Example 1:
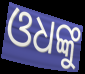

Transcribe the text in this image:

ଓଧଙ୍କୁ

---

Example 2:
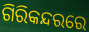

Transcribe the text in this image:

ଗିରିକନ୍ଦରରେ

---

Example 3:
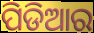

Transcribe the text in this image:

ପିଡିଆର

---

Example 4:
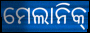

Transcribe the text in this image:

ମେଲାନିକ୍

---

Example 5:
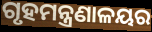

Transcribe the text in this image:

ଗୃହମନ୍ତ୍ରଣାଳୟର